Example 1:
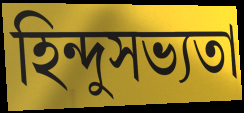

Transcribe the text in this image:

হিন্দুসভ্যতা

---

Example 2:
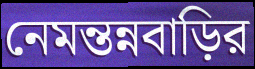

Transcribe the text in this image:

নেমন্তন্নবাড়ির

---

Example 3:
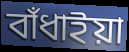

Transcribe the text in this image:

বাঁধাইয়া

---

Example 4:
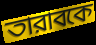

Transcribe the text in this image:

তারাবকে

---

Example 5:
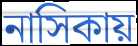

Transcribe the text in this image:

নাসিকায়